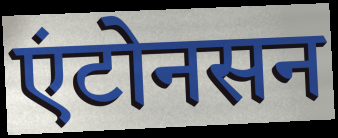
एंटोनसन